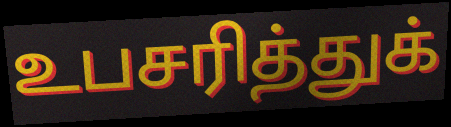
உபசரித்துக்